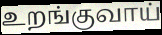
உறங்குவாய்